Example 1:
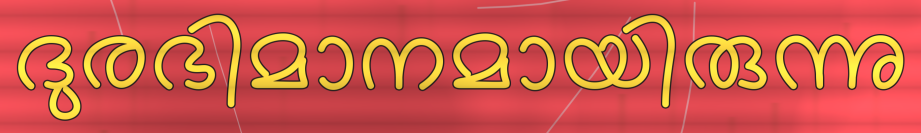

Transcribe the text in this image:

ദുരഭിമാനമായിരുന്നു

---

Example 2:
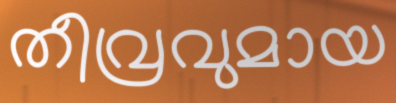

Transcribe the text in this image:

തീവ്രവുമായ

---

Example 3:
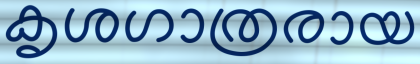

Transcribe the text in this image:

കൃശഗാത്രരായ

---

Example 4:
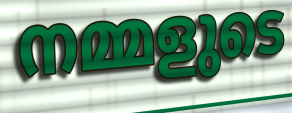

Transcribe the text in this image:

നമ്മളുടെ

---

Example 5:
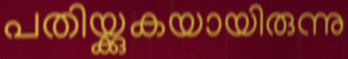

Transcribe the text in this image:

പതിയ്ക്കുകയായിരുന്നു